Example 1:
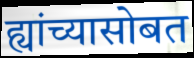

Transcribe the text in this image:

ह्यांच्यासोबत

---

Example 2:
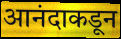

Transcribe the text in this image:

आनंदाकडून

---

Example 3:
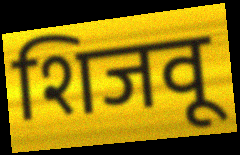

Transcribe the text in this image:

शिजवू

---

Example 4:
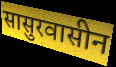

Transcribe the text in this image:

सासुरवासीन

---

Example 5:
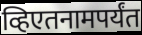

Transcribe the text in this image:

व्हिएतनामपर्यंत